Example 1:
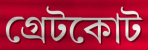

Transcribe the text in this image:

গ্রেটকোট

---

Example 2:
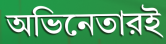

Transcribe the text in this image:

অভিনেতারই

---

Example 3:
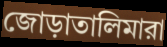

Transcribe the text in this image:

জোড়াতালিমারা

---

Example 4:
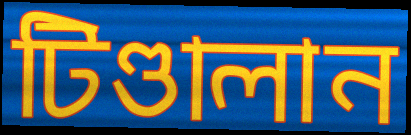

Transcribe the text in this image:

টিণ্ডালান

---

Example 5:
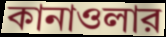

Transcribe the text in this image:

কানাওলার